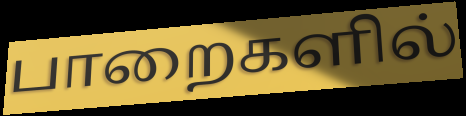
பாறைகளில்